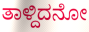
ತಾಳ್ದಿದನೋ